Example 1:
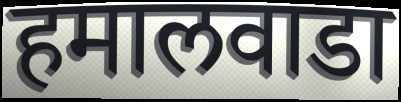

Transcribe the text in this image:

हमालवाडा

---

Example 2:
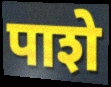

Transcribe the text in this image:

पाशे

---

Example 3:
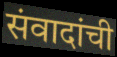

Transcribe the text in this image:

संवादांची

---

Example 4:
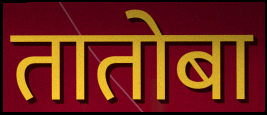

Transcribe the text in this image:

तातोबा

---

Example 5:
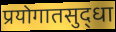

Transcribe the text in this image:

प्रयोगातसुद्धा